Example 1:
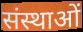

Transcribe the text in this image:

संस्थाओं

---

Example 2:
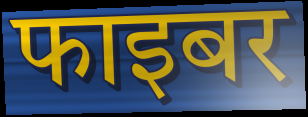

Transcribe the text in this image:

फाइबर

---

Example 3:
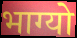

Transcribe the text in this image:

भाग्यो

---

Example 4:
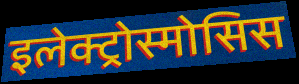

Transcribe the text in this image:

इलेक्ट्रोस्मोसिस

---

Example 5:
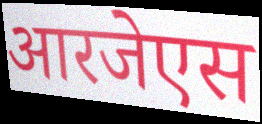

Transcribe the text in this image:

आरजेएस